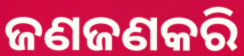
ଜଣଜଣକରି